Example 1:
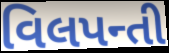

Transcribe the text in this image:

વિલપન્તી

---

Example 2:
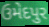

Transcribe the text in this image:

ઉમેદપુર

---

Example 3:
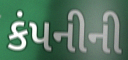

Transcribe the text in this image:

કંપનીની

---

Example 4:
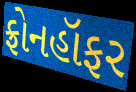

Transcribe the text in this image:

ફ્રોનહૉફર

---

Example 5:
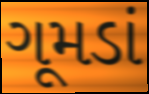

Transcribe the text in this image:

ગૂમડાં